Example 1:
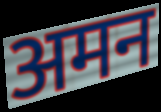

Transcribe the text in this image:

अमन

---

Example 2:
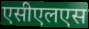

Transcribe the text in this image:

एसीएलएस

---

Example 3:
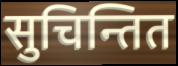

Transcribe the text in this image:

सुचिन्तित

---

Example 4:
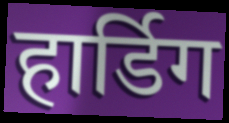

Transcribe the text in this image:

हार्डिग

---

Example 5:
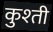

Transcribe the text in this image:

कुश्‍ती